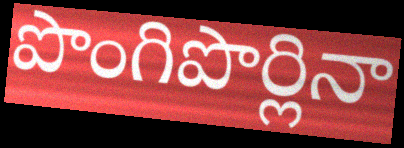
పొంగిపొర్లినా